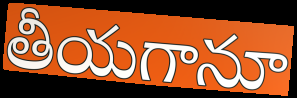
తీయగానూ